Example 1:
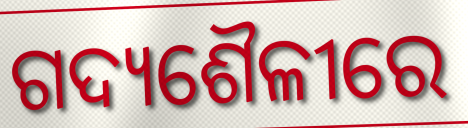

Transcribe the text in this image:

ଗଦ୍ୟଶୈଳୀରେ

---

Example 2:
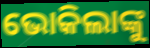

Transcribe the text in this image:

ଭୋକିଲାଙ୍କୁ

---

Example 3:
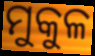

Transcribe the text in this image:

ମୁକୁଳ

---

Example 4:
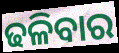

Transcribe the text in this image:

ଢଳିବାର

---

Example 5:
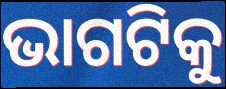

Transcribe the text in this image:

ଭାଗଟିକୁ